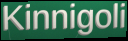
Kinnigoli